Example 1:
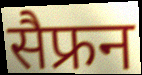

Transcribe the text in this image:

सैफ्रन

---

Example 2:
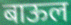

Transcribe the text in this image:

बाऊल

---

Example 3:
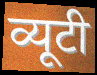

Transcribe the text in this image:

व्यूटी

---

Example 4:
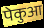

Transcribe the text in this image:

पेकुआ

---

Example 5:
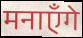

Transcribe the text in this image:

मनाएँगे